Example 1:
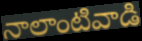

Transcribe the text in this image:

నాలాంటివాడి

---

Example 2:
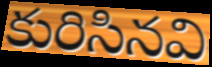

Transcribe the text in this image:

కురిసినవి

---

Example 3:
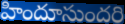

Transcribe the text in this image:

హిందూసుందరి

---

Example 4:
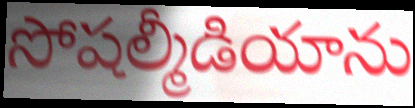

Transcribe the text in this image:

సోషల్మీడియాను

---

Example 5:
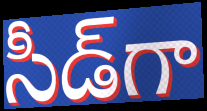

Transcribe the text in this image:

సీడ్‌గా